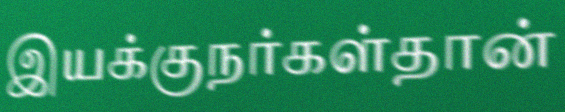
இயக்குநர்கள்தான்